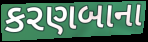
કરણબાના